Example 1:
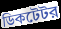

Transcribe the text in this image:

ডিকটেটর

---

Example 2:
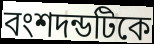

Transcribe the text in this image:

বংশদন্ডটিকে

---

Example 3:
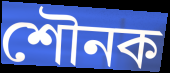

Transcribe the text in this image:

শৌনক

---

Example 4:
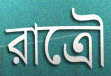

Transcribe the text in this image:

রাত্রৌ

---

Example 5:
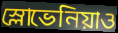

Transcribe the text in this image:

স্লোভেনিয়াও